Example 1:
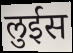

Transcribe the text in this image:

लुईस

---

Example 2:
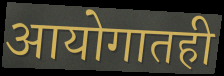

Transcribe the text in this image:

आयोगातही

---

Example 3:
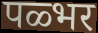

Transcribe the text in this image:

पळ्भर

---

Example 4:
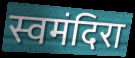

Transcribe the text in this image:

स्वमंदिरा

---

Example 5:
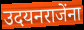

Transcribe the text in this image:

उदयनराजेंना